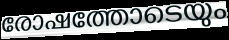
രോഷത്തോടെയും